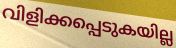
വിളിക്കപ്പെടുകയില്ല